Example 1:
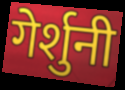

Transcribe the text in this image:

गेर्शुनी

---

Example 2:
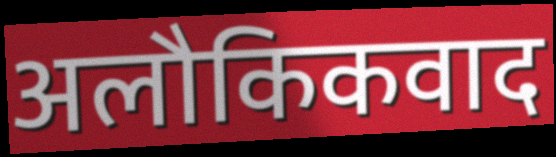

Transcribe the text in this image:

अलौकिकवाद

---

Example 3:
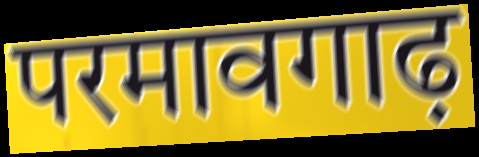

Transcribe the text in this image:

परमावगाढ़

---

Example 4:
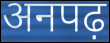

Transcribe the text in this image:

अनपढ़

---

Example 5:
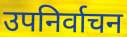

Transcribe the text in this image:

उपनिर्वाचन